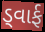
ડ્વાર્ફ